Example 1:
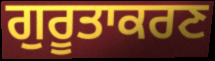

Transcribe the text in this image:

ਗੁਰੂਤਾਕਰਣ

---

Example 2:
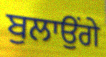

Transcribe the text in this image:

ਬੁਲਾਉਂਗੇ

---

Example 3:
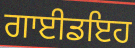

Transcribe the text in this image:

ਗਾਈਡਇਹ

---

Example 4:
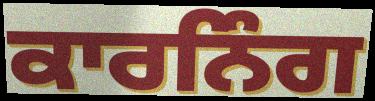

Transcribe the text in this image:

ਕਾਰਨਿੰਗ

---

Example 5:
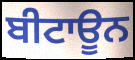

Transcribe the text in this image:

ਬੀਟਾਊਨ